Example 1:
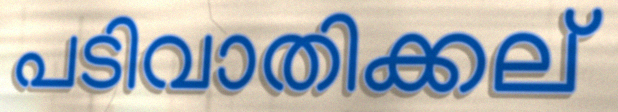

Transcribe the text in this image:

പടിവാതിക്കല്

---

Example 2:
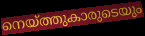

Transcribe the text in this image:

നെയ്ത്തുകാരുടെയും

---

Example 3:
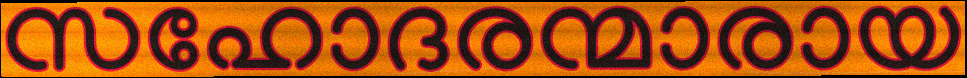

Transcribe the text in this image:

സഹോദരന്മാരായ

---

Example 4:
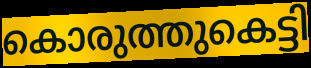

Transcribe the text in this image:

കൊരുത്തുകെട്ടി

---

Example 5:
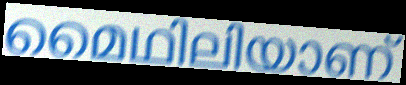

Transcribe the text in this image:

മൈഥിലിയാണ്